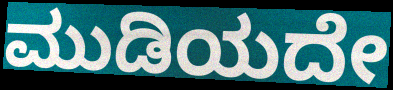
ಮುಡಿಯದೇ